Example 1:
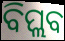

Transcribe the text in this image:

ବିପ୍ଲବ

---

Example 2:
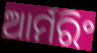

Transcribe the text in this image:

ଆର୍ମରିଂ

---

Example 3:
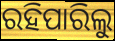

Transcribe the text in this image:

ରହିପାରିଲୁ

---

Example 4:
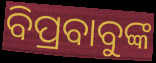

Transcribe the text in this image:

ବିପ୍ରବାବୁଙ୍କ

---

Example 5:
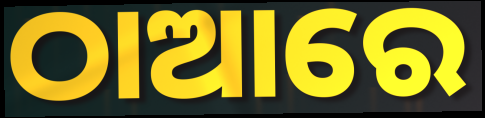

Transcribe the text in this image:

ଠାଆରେ